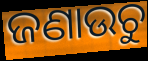
ଜଣାଉଚୁ